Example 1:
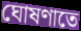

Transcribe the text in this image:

ঘোষণাতে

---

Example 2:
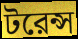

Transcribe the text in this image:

টরেন্স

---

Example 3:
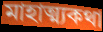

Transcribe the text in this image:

মাহাত্ম্যকথা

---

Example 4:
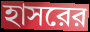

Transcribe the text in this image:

হাসরের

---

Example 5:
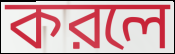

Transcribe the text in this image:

করলে